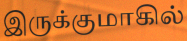
இருக்குமாகில்